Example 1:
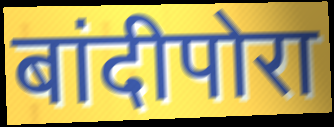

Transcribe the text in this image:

बांदीपोरा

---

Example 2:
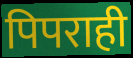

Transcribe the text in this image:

पिपराही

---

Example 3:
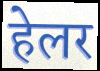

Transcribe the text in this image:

हेलर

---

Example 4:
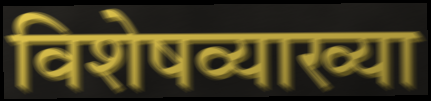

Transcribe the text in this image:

विशेषव्याख्या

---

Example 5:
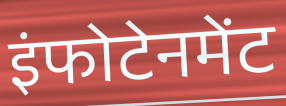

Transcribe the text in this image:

इंफोटेनमेंट